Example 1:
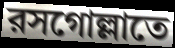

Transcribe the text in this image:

রসগোল্লাতে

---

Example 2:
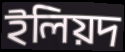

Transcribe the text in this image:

ইলিয়দ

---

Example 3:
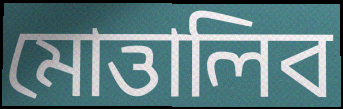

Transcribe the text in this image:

মোত্তালিব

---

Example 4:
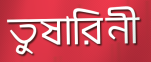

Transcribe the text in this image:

তুষারিনী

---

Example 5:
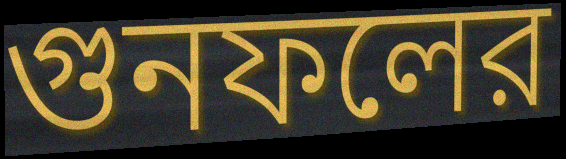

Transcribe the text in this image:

গুনফলের